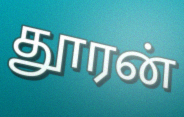
தூரன்